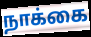
நாக்கை